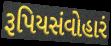
રૂપિયસંવોહારં